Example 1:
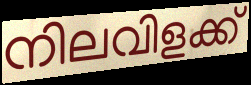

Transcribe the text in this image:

നിലവിളക്ക്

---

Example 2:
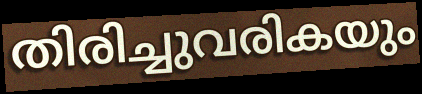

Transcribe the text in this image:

തിരിച്ചുവരികയും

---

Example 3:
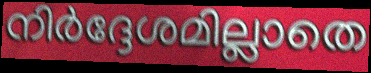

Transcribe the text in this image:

നിർദ്ദേശമില്ലാതെ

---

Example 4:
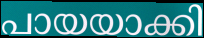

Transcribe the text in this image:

പായയാക്കി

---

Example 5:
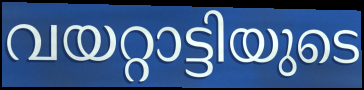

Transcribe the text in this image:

വയറ്റാട്ടിയുടെ